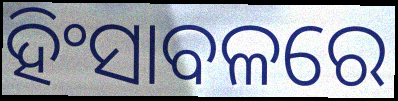
ହିଂସାବଳରେ